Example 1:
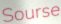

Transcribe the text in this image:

Sourse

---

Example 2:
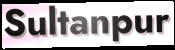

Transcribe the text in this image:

Sultanpur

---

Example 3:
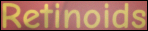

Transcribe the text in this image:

Retinoids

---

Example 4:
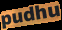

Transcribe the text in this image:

pudhu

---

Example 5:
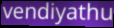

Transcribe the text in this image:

vendiyathu